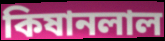
কিষানলাল